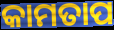
କାମତାପ